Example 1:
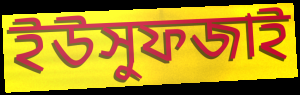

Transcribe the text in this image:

ইউসুফজাই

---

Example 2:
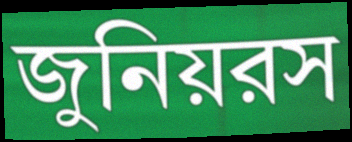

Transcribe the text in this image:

জুনিয়রস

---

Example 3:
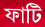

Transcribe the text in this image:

ফাটি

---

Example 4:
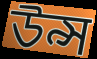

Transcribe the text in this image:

উন্স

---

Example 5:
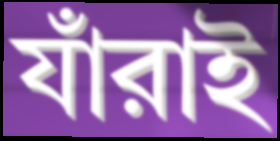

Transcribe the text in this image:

যাঁরাই